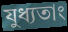
যুধ্যতাং